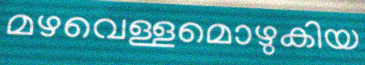
മഴവെള്ളമൊഴുകിയ